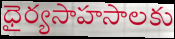
ధైర్యసాహసాలకు